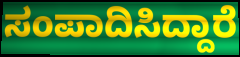
ಸಂಪಾದಿಸಿದ್ದಾರೆ